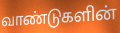
வாண்டுகளின்